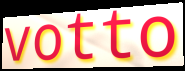
votto